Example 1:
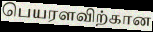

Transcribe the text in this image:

பெயரளவிற்கான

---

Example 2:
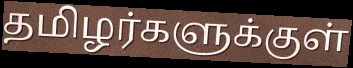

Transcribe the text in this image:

தமிழர்களுக்குள்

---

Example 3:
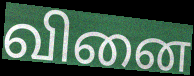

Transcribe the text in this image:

வினை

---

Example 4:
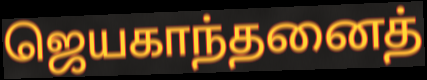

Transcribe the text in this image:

ஜெயகாந்தனைத்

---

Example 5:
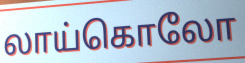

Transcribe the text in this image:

லாய்கொலோ